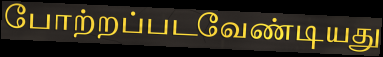
போற்றப்படவேண்டியது